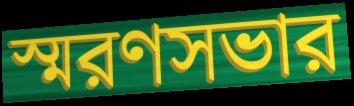
স্মরণসভার